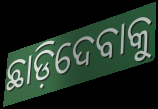
ଛାଡ଼ିଦେବାକୁ